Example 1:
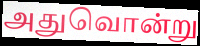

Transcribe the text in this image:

அதுவொன்று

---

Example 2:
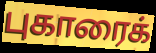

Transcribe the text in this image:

புகாரைக்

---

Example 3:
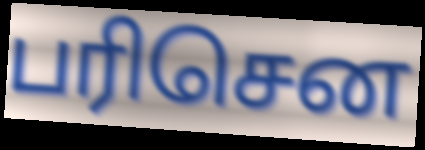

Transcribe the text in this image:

பரிசென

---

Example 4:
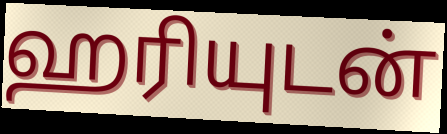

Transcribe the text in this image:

ஹரியுடன்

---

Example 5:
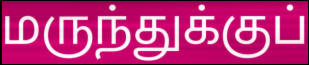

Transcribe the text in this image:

மருந்துக்குப்